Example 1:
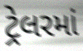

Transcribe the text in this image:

ટ્રેલરમાં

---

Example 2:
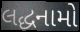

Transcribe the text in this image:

લદ્ધનામો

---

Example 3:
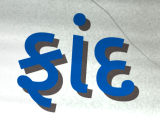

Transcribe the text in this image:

ફાંદ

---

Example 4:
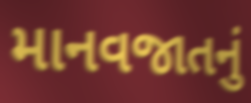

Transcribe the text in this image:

માનવજાતનું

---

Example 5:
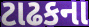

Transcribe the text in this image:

ટાઢકના